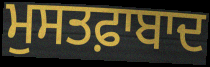
ਮੁਸਤਫ਼ਾਬਾਦ